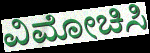
ವಿಮೋಚಿಸಿ